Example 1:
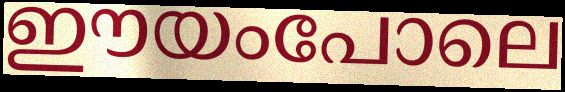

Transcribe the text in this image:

ഈയംപോലെ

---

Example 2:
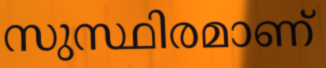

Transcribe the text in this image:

സുസ്ഥിരമാണ്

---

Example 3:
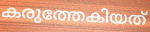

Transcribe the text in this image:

കരുത്തേകിയത്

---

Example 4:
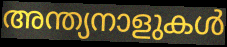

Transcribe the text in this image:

അന്ത്യനാളുകൾ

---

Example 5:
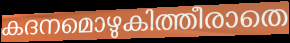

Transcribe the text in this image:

കദനമൊഴുകിത്തീരാതെ